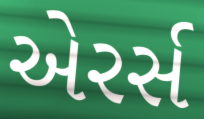
એરર્સ